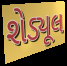
શેડ્યૂલ